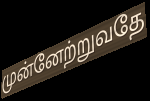
முன்னேற்றுவதே